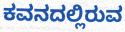
ಕವನದಲ್ಲಿರುವ